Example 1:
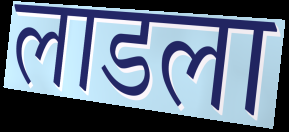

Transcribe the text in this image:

लाडला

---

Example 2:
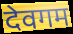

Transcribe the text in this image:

देवगम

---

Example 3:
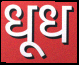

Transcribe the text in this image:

धूध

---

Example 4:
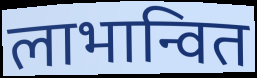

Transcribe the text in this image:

लाभान्वित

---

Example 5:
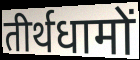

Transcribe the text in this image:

तीर्थधामों